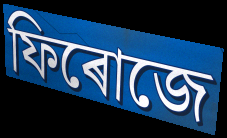
ফিৰোজে